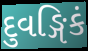
દુવઙ્ગિકં